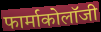
फार्माकोलॉजी